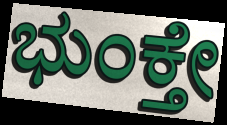
ಭುಂಕ್ತೇ